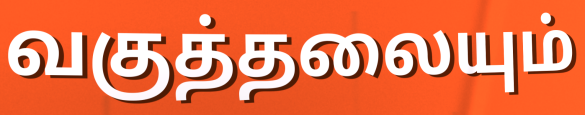
வகுத்தலையும்